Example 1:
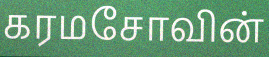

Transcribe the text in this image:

கரமசோவின்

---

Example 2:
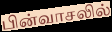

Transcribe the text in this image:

பின்வாசலில்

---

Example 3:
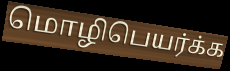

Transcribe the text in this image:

மொழிபெயர்க்க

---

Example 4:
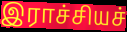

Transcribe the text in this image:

இராச்சியச்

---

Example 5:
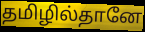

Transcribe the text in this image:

தமிழில்தானே